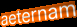
aeternam